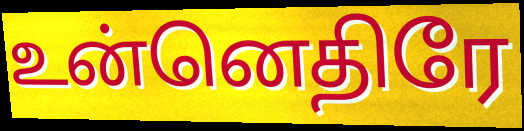
உன்னெதிரே